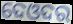
ଦେଓଦର